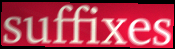
suffixes